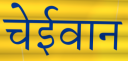
चेईवान